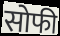
सोफी